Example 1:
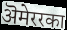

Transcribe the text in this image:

ऄमेररका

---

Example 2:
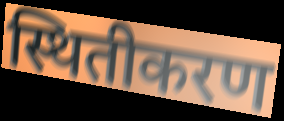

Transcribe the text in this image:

स्थितीकरण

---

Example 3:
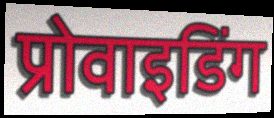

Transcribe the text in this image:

प्रोवाइडिंग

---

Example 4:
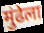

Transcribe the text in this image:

मुंढेला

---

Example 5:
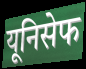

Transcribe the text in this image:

यूनिसेफ